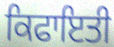
ਕਿਫਾਇਤੀ